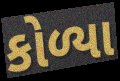
કોળ્યા